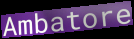
Ambatore